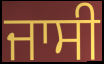
ਜਾਸੀ